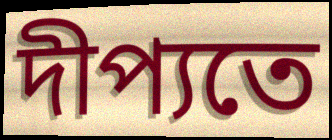
দীপ্যতে